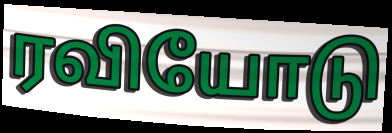
ரவியோடு